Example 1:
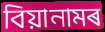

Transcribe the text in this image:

বিয়ানামৰ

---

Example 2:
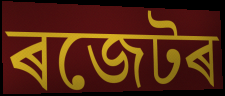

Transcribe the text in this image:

ৰজেটৰ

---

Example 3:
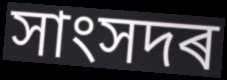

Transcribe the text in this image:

সাংসদৰ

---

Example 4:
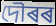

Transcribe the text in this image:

দৌৰৰ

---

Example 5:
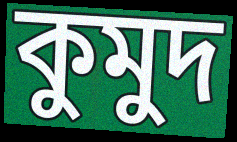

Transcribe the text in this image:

কুমুদ